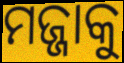
ମଜ୍ଜାକୁ